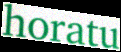
horatu